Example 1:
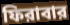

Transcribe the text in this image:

ফিরাবার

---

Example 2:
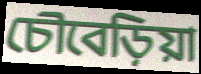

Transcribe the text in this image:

চৌবেড়িয়া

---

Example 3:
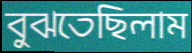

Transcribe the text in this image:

বুঝতেছিলাম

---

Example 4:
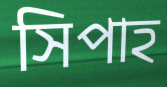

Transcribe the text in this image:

সিপাহ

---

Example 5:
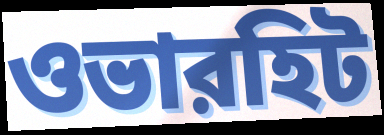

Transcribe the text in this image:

ওভারহিট